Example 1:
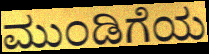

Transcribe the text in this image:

ಮುಂಡಿಗೆಯ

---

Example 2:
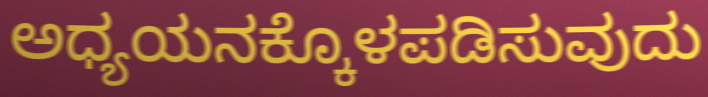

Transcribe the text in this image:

ಅಧ್ಯಯನಕ್ಕೊಳಪಡಿಸುವುದು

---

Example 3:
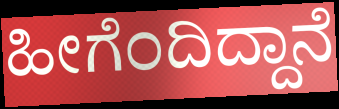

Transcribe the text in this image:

ಹೀಗೆಂದಿದ್ದಾನೆ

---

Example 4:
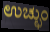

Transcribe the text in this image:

ಉಚ್ಛುಂ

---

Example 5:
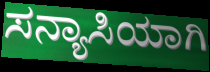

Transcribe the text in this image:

ಸನ್ಯಾಸಿಯಾಗಿ